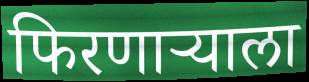
फिरणाऱ्याला